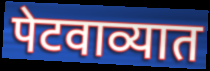
पेटवाव्यात